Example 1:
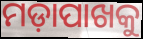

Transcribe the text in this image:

ମଡ଼ାପାଖକୁ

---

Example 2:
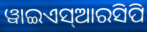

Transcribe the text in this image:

ୱାଇଏସ୍ଆରସିପି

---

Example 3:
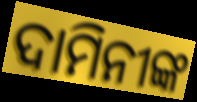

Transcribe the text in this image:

ଦାମିନୀଙ୍କ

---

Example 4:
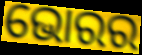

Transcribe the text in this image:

ଭୋରର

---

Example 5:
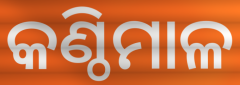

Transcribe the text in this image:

କଣ୍ଠିମାଳ